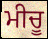
ਮੀਚੂ